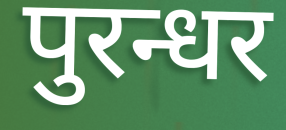
पुरन्धर